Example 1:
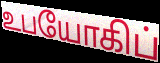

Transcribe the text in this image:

உபயோகிப்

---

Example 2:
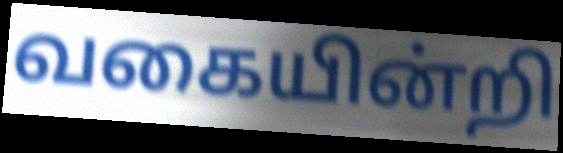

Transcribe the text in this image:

வகையின்றி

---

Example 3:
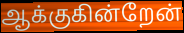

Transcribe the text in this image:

ஆக்குகின்றேன்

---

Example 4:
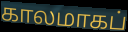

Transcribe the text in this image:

காலமாகப்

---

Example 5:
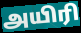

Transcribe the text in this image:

அயிரி